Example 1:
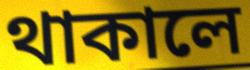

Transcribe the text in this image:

থাকালে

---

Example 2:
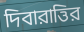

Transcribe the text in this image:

দিবারাত্তির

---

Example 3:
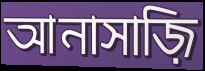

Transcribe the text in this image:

আনাসাজ়ি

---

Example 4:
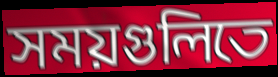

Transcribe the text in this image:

সময়গুলিতে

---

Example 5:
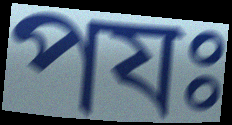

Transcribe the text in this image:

পযঃ